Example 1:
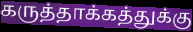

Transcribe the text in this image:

கருத்தாக்கத்துக்கு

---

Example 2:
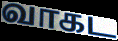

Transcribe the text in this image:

வாகட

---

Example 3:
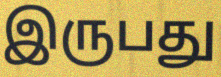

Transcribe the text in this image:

இருபது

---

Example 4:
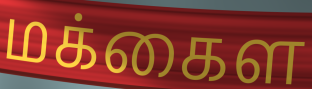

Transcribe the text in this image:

மக்கைள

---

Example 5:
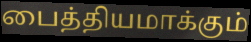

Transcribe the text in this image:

பைத்தியமாக்கும்